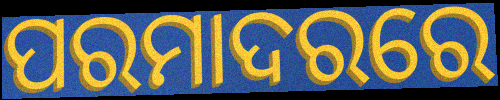
ପରମାଦରରେ